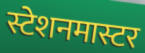
स्टेशनमास्टर